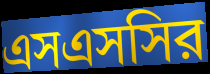
এসএসসির